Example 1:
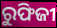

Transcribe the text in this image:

ରୁଫିଜୀ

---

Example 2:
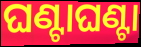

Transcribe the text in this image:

ଘଣ୍ଟାଘଣ୍ଟା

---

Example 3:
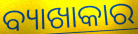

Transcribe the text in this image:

ବ୍ୟାଖାକାର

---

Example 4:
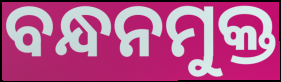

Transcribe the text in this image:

ବନ୍ଧନମୁକ୍ତ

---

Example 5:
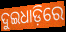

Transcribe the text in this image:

ଦୁଇଧାଡ଼ିରେ